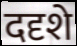
ददृशे